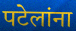
पटेलांना